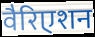
वैरिएशन